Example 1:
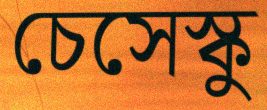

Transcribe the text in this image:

চেসেস্কু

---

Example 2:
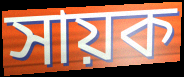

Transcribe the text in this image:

সায়ক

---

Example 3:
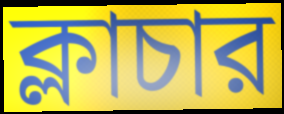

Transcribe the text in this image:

ক্লাচার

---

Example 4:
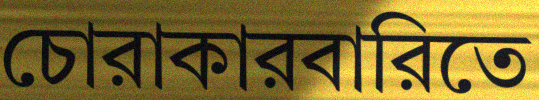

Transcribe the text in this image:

চোরাকারবারিতে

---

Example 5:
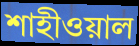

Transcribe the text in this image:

শাহীওয়াল